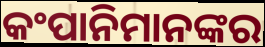
କଂପାନିମାନଙ୍କର